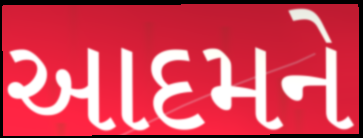
આદમને